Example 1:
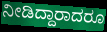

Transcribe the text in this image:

ನೀಡಿದ್ದಾರಾದರೂ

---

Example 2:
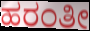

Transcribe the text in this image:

ಹರಂತೀ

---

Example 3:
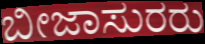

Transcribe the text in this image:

ಬೀಜಾಸುರರು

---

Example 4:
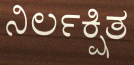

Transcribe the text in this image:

ನಿರ್ಲಕ್ಷಿತ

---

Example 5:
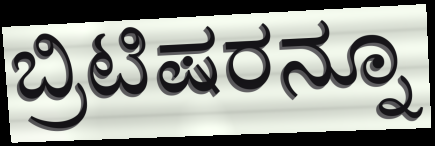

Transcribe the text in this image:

ಬ್ರಿಟಿಷರನ್ನೂ